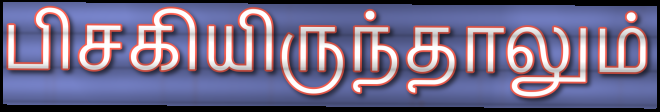
பிசகியிருந்தாலும்